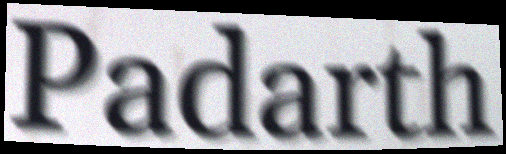
Padarth